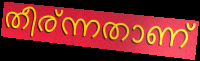
തീര്ന്നതാണ്